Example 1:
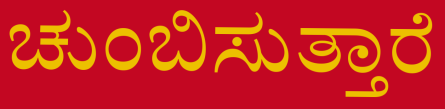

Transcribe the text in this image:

ಚುಂಬಿಸುತ್ತಾರೆ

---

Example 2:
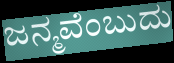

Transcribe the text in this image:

ಜನ್ಮವೆಂಬುದು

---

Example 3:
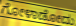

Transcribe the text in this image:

ಗೋಳಾಡೋದು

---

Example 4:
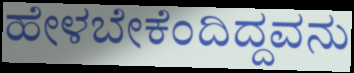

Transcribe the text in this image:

ಹೇಳಬೇಕೆಂದಿದ್ದವನು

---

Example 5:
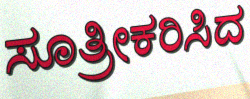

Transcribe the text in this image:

ಸೂತ್ರೀಕರಿಸಿದ